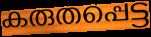
കരുതപ്പെട്ട